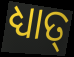
ଧ୍ୟାତ୍